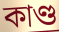
কাণ্ড